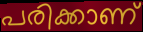
പരിക്കാണ്